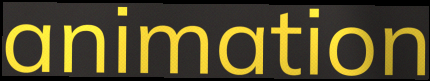
animation